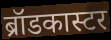
ब्रॉडकास्टर